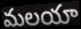
మలయా